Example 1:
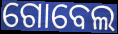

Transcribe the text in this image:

ଗୋବେଲ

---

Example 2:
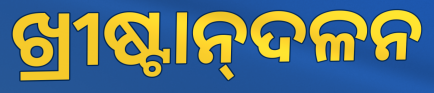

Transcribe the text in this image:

ଖ୍ରୀଷ୍ଟାନ୍‌ଦଳନ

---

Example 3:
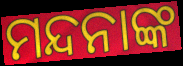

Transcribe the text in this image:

ମନ୍ଦନାଙ୍କ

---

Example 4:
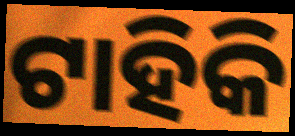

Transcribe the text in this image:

ଟାହିକି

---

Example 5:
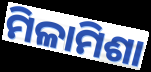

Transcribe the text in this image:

ମିଳାମିଶା